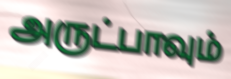
அருட்பாவும்